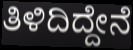
ತಿಳಿದಿದ್ದೇನೆ